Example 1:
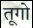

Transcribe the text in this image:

तूगो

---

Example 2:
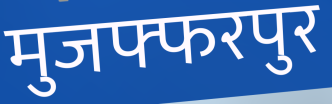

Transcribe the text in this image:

मुजफ्फरपुर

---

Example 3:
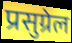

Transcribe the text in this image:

प्रसुग्रेल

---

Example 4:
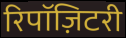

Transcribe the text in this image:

रिपॉज़िटरी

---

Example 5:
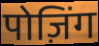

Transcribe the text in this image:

पोज़िंग